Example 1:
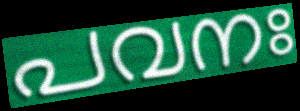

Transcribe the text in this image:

പവനഃ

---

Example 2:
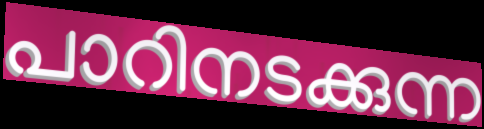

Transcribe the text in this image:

പാറിനടക്കുന്ന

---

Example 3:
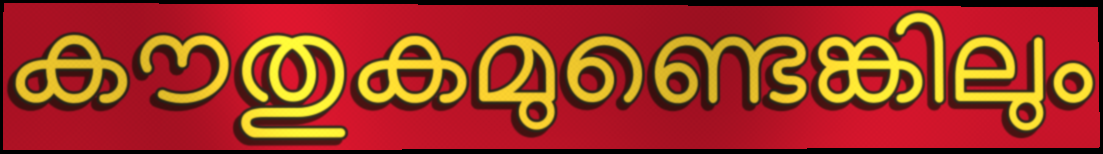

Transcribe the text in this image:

കൗതുകമുണ്ടെങ്കിലും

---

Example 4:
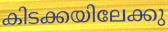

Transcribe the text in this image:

കിടക്കയിലേക്കു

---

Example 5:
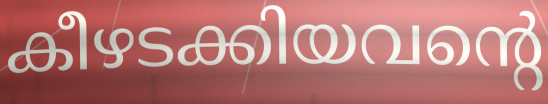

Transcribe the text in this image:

കീഴടക്കിയവന്റെ